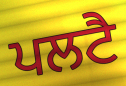
ਪਲਟੈ